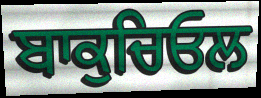
ਬਾਕੁਚਿਓਲ